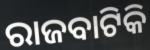
ରାଜବାଟିକି